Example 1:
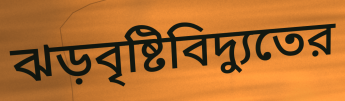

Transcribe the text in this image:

ঝড়বৃষ্টিবিদ্যুতের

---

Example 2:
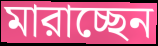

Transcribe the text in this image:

মারাচ্ছেন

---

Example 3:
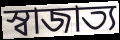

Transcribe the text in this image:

স্বাজাত্য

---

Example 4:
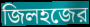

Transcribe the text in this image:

জিলহজের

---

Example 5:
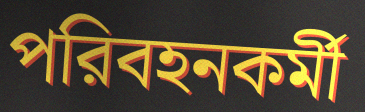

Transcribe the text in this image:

পরিবহনকর্মী